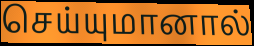
செய்யுமானால்